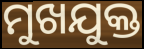
ମୁଖଯୁକ୍ତ